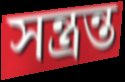
সন্ত্রন্ত